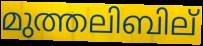
മുത്തലിബില്